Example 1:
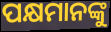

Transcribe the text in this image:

ପକ୍ଷମାନଙ୍କୁ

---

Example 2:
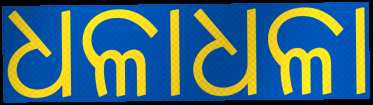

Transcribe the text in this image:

ଧଳାଧଳା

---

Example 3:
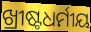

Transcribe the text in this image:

ଖ୍ରୀଷ୍ଟଧର୍ମୀୟ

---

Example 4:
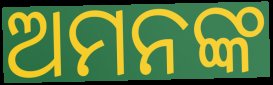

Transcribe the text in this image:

ଅମନଙ୍କ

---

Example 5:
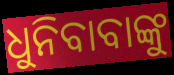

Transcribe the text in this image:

ଧୁନିବାବାଙ୍କୁ